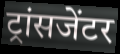
ट्रांसजेंटर